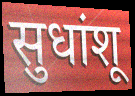
सुधांशू